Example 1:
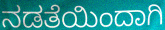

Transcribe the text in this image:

ನಡತೆಯಿಂದಾಗಿ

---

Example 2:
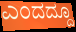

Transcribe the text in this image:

ಎಂದದ್ದೂ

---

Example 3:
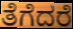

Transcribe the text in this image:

ತೆಗೆದರೆ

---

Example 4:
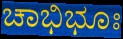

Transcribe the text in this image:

ಚಾಭಿಭೂಃ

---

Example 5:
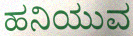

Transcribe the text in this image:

ಹನಿಯುವ